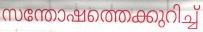
സന്തോഷത്തെക്കുറിച്ച്